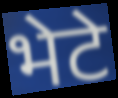
भेटे